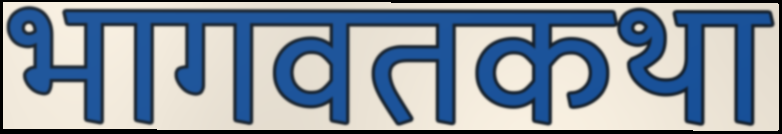
भागवतकथा